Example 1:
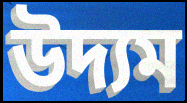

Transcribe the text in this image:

উদ্যম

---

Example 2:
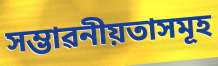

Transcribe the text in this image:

সম্ভাৱনীয়তাসমূহ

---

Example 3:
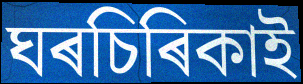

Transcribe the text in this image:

ঘৰচিৰিকাই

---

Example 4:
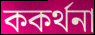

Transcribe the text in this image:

ককৰ্থনা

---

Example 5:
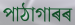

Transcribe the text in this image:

পাঠাগাৰৰ